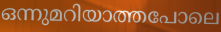
ഒന്നുമറിയാത്തപോലെ